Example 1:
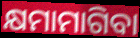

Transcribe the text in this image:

କ୍ଷମାମାଗିବା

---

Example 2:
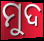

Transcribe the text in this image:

ମୁଦ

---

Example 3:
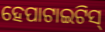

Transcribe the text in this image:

ହେପାଟାଇଟିସ୍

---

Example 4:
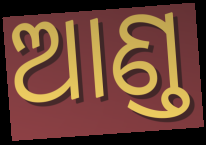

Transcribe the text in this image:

ଆଣ୍ଡ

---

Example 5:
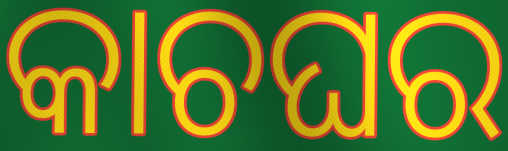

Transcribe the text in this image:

କାଚଘର